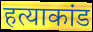
हत्याकांड